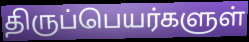
திருப்பெயர்களுள்